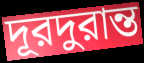
দূরদুরান্ত